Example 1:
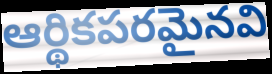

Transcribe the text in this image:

ఆర్థికపరమైనవి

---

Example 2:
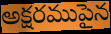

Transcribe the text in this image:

అక్షరముపైన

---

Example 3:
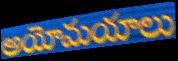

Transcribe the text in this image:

అయోమయాలు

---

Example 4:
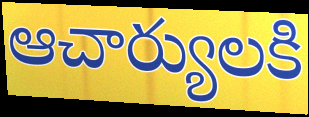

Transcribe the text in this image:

ఆచార్యులకి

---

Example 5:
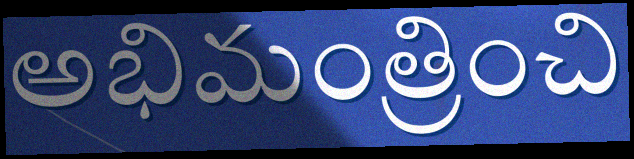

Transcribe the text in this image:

అభిమంత్రించి